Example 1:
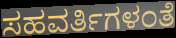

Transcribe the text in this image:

ಸಹವರ್ತಿಗಳಂತೆ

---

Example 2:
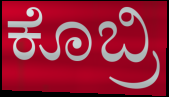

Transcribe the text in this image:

ಕೊಬ್ರಿ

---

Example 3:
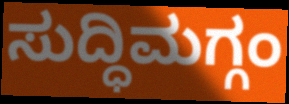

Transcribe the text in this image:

ಸುದ್ಧಿಮಗ್ಗಂ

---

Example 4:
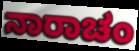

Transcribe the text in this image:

ನಾರಾಚಂ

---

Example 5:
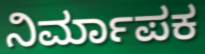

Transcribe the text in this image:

ನಿರ್ಮಾಪಕ